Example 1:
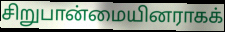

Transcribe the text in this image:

சிறுபான்மையினராகக்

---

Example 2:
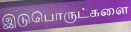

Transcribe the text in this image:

இடுபொருட்களை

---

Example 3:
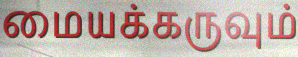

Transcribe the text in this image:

மையக்கருவும்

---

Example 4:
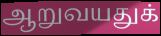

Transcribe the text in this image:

ஆறுவயதுக்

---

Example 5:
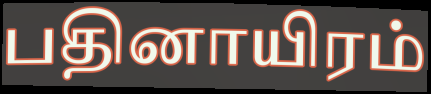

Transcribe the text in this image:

பதினாயிரம்